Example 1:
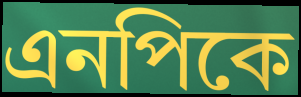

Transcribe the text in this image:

এনপিকে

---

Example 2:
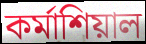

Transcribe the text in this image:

কর্মাশিয়াল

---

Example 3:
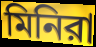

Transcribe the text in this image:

মিনিরা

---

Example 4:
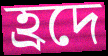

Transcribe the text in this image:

হ্রদে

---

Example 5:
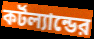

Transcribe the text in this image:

কর্টল্যান্ডের